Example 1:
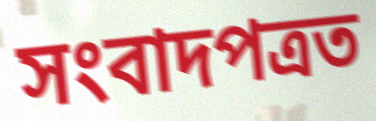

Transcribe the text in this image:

সংবাদপত্ৰত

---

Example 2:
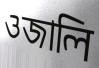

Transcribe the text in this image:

ওজালি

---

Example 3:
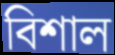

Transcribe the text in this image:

বিশাল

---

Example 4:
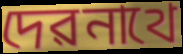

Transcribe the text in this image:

দেৱনাথে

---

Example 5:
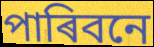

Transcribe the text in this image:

পাৰিবনে